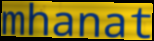
mhanat